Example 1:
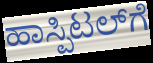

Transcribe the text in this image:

ಹಾಸ್ಪಿಟಲ್‌ಗೆ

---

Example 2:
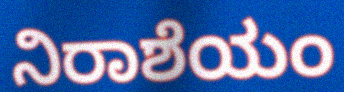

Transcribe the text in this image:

ನಿರಾಶೆಯಂ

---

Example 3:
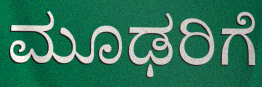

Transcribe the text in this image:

ಮೂಢರಿಗೆ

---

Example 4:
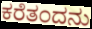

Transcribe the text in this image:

ಕರೆತಂದನು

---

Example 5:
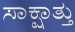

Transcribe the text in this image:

ಸಾಕ್ಷಾತ್ತು